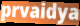
prvaidya